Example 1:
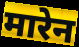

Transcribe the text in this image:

मारेन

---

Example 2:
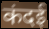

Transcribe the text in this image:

कंदई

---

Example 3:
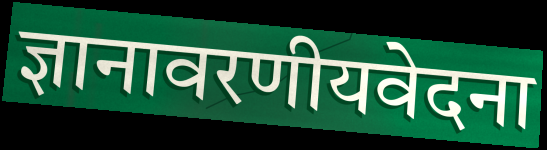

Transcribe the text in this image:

ज्ञानावरणीयवेदना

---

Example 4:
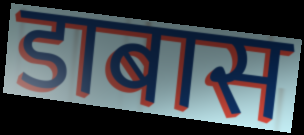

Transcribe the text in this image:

डाबास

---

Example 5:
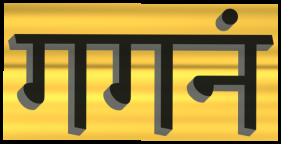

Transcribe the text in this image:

गगनं